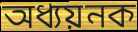
অধ্যয়নক